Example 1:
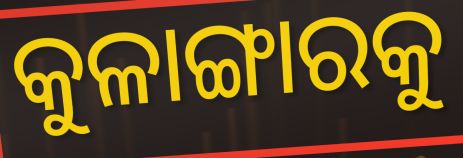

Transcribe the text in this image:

କୁଳାଙ୍ଗାରକୁ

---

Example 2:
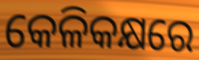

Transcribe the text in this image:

କେଳିକକ୍ଷରେ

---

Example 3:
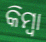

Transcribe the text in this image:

କିମ୍ଵା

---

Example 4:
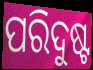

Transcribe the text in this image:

ପରିଦୁଷ୍ଟ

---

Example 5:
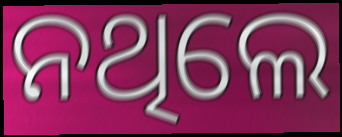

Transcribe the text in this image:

ନଥିଲେ